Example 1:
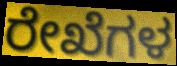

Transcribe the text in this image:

ರೇಖೆಗಳ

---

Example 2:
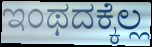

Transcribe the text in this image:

ಇಂಥದಕ್ಕೆಲ್ಲ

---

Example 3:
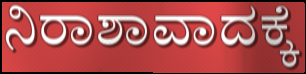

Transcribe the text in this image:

ನಿರಾಶಾವಾದಕ್ಕೆ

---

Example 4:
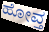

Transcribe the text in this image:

ಹೋವ್ತ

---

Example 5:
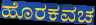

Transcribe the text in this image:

ಹೊರಕವಚ